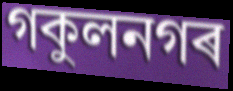
গকুলনগৰ